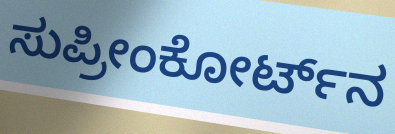
ಸುಪ್ರೀಂಕೋರ್ಟ್‌ನ